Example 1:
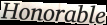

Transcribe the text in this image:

Honorable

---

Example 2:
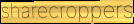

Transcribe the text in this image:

sharecroppers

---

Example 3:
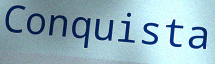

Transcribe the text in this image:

Conquista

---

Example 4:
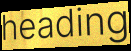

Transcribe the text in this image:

heading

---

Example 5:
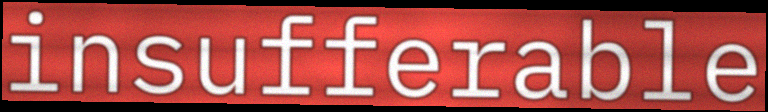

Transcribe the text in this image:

insufferable